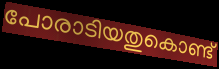
പോരാടിയതുകൊണ്ട്